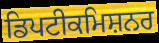
ਡਿਪਟੀਕਮਿਸ਼ਨਰ